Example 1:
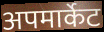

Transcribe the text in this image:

अपमार्केट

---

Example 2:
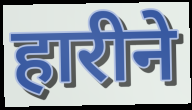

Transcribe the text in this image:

हारीने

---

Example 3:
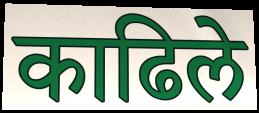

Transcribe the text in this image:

काढिले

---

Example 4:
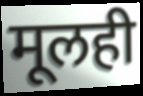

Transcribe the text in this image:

मूलही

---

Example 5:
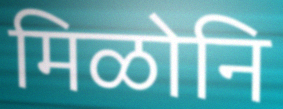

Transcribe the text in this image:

मिळोनि